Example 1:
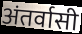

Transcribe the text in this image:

अंतर्वासी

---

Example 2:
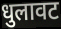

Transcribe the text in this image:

धुलावट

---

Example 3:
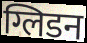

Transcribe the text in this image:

ग्लिडन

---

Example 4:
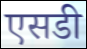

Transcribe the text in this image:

एसडी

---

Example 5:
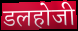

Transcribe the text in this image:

डलहोजी